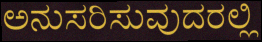
ಅನುಸರಿಸುವುದರಲ್ಲಿ